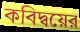
কবিদ্বয়ের